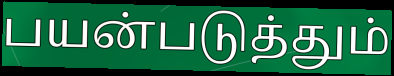
பயன்படுத்தும்